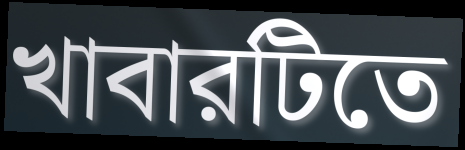
খাবারটিতে